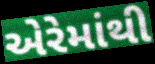
એરેમાંથી